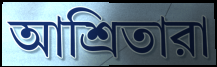
আশ্রিতারা